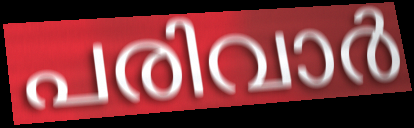
പരിവാർ